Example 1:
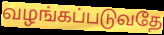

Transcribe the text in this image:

வழங்கப்படுவதே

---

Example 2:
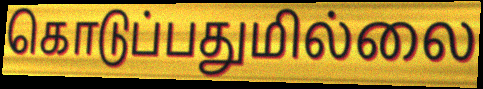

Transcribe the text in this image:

கொடுப்பதுமில்லை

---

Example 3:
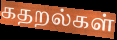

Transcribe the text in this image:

கதறல்கள்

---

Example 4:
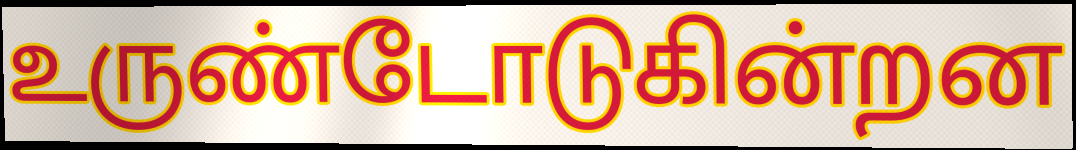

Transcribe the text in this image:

உருண்டோடுகின்றன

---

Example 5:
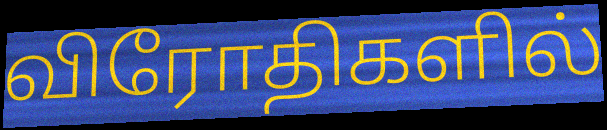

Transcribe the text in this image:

விரோதிகளில்